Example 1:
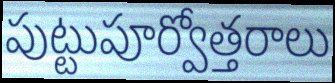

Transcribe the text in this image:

పుట్టుపూర్వోత్తరాలు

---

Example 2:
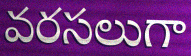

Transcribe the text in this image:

వరసలుగా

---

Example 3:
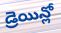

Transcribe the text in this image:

డ్రెయిన్లో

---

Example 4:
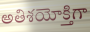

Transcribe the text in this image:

అతిశయోక్తిగా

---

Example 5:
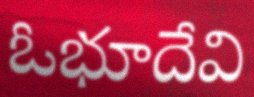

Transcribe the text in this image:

ఓభూదేవి